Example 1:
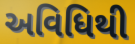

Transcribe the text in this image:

અવિધિથી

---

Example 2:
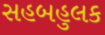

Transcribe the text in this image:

સહબહુલક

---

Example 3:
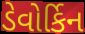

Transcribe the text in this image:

ડેવોર્કિન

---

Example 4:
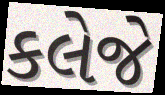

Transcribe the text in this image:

કલેજે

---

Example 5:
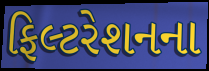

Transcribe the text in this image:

ફિલ્ટરેશનના